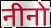
नीनो